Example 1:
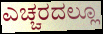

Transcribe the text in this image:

ಎಚ್ಚರದಲ್ಲೂ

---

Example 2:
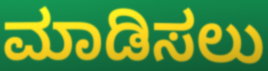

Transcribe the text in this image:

ಮಾಡಿಸಲು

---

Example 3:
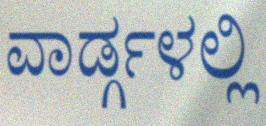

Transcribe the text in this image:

ವಾರ್ಡ್ಗಳಲ್ಲಿ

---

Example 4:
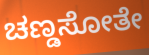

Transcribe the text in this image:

ಚಣ್ಡಸೋತೇ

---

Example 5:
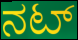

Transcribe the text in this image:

ನಟ್